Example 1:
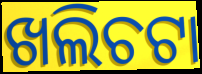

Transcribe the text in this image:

ଖଲିଚଟା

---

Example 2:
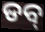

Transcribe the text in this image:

ଡବ୍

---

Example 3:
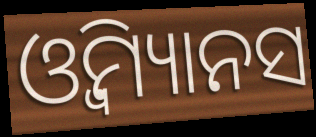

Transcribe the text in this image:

ଓ୍ବିମ୍ୟାନସ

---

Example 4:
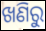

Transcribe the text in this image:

ଖଣିରୁ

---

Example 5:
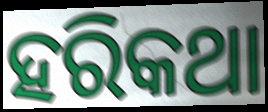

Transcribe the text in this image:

ହରିକଥା